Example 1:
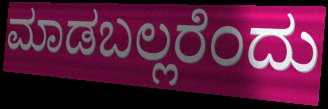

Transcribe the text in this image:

ಮಾಡಬಲ್ಲರೆಂದು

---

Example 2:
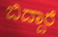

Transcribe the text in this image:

ಬಿದ್ದಾರೆ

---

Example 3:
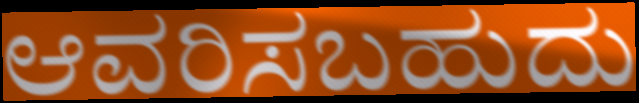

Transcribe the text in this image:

ಆವರಿಸಬಹುದು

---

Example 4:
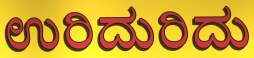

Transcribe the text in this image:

ಉರಿದುರಿದು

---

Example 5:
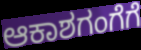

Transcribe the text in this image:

ಆಕಾಶಗಂಗೆಗೆ